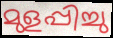
മുളപ്പിച്ചു